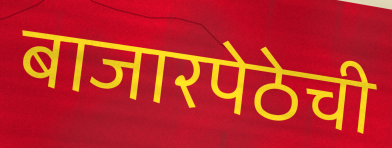
बाजारपेठेची